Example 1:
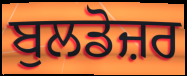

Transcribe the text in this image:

ਬੁਲਡੋਜ਼ਰ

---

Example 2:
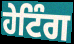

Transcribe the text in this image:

ਹੇਟਿੰਗ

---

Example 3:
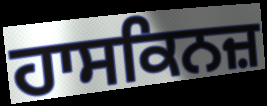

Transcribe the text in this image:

ਹਾਸਕਿਨਜ਼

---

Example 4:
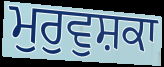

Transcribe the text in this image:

ਮੁਰੁਵੁਸ਼ਕਾ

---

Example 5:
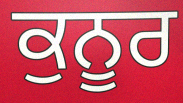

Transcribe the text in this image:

ਕੁਨੂਰ